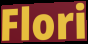
Flori